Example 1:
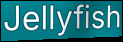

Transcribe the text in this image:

Jellyfish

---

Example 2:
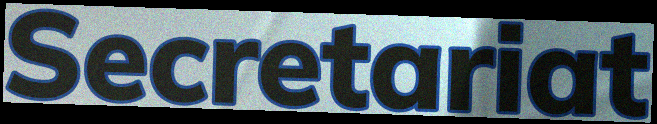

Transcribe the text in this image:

Secretariat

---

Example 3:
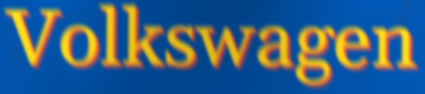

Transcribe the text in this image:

Volkswagen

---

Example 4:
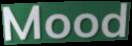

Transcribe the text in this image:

Mood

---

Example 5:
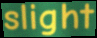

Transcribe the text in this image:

slight